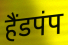
हैंडपंप